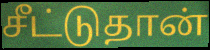
சீட்டுதான்